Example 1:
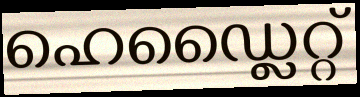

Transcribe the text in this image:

ഹെഡ്ലൈറ്റ്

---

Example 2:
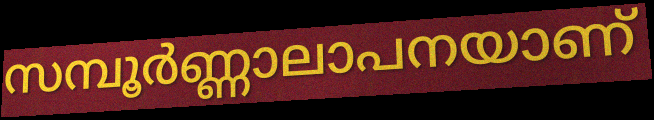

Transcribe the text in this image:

സമ്പൂർണ്ണാലാപനയാണ്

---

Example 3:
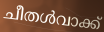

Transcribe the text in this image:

ചീതൾവാക്ക്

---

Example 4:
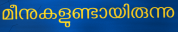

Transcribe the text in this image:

മീനുകളുണ്ടായിരുന്നു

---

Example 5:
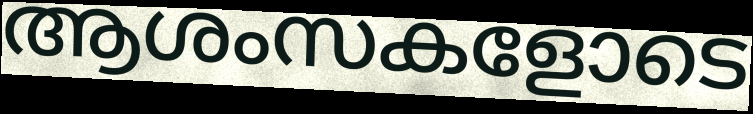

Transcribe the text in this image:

ആശംസകളോടെ